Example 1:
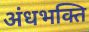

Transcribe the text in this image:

अंधभक्ति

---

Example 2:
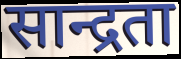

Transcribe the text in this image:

सान्द्रता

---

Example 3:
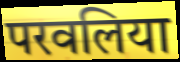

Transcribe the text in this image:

परवलिया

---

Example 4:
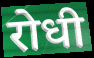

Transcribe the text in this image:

रोधी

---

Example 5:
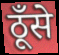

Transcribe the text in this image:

ठूँसे